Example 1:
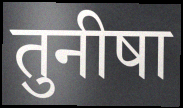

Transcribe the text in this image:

तुनीषा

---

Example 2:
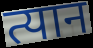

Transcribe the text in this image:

त्यान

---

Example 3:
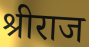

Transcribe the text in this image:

श्रीराज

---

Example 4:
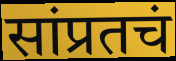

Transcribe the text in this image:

सांप्रतचं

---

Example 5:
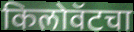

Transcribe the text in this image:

किलोवॅटचा